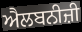
ਐਲਬਨੀਜ਼ੀ